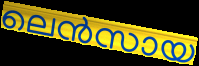
ലെൻസായ